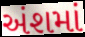
અંશમાં